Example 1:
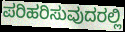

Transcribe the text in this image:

ಪರಿಹರಿಸುವುದರಲ್ಲಿ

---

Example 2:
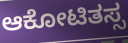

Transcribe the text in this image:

ಆಕೋಟಿತಸ್ಸ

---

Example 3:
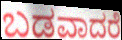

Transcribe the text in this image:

ಬಡವಾದರೆ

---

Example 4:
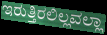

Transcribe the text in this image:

ಇರುತ್ತಿರಲಿಲ್ಲವಲ್ಲಾ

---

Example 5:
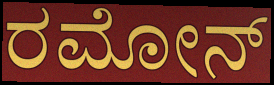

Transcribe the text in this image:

ರಮೋನ್